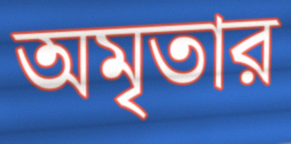
অমৃতার